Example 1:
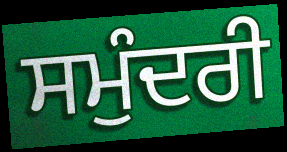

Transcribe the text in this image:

ਸਮੁੰਦਰੀ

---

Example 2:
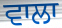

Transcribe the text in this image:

ਵਾਲਾ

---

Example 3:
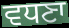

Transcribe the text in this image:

ਵਧਣਾ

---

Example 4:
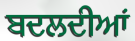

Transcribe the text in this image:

ਬਦਲਦੀਆਂ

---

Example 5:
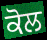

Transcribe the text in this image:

ਕੋਲ